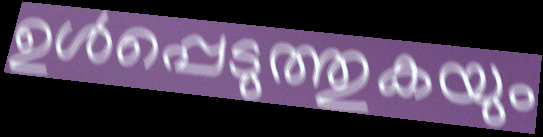
ഉൾപ്പെടുത്തുകയും